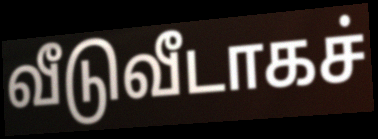
வீடுவீடாகச்